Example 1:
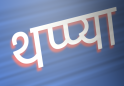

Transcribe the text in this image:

थप्प्या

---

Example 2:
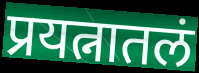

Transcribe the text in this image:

प्रयत्नातलं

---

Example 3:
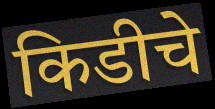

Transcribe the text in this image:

किडीचे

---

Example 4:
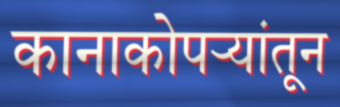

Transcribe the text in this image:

कानाकोपर्‍यांतून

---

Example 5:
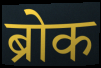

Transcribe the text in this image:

ब्रोक